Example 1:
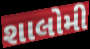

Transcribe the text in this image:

શાલોમી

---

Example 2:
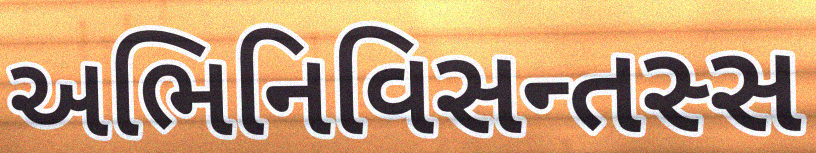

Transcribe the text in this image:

અભિનિવિસન્તસ્સ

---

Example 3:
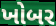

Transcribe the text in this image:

ખોબર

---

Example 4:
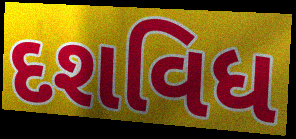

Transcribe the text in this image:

દશવિધ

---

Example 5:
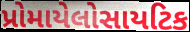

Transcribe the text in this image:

પ્રોમાયેલોસાયટિક